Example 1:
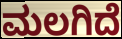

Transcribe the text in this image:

ಮಲಗಿದೆ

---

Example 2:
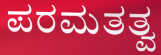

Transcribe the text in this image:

ಪರಮತತ್ವ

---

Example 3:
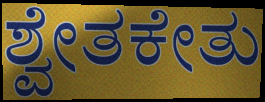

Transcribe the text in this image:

ಶ್ವೇತಕೇತು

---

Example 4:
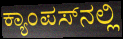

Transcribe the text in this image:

ಕ್ಯಾಂಪಸ್‌ನಲ್ಲಿ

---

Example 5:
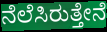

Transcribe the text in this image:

ನೆಲೆಸಿರುತ್ತೇನೆ